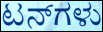
ಟನ್‌ಗಳು